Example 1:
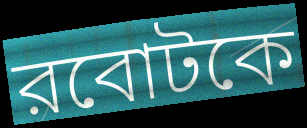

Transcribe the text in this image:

রবোটকে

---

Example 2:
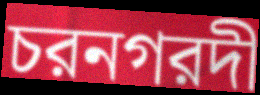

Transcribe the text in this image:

চরনগরদী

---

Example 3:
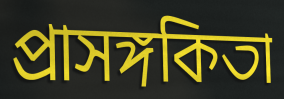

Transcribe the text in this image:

প্রাসঙ্গকিতা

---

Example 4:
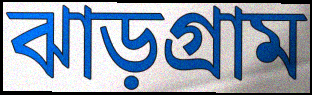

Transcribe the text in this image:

ঝাড়গ্রাম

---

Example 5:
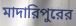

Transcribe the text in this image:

মাদারিপুরের